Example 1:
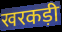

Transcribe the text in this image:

खरकड़ी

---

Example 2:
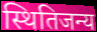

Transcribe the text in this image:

स्थितिजन्य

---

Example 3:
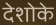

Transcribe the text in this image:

देशोके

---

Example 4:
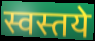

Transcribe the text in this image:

स्वस्तये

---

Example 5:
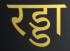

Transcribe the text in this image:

रड्डा